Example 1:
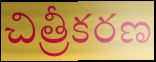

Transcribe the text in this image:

చిత్రీకరణ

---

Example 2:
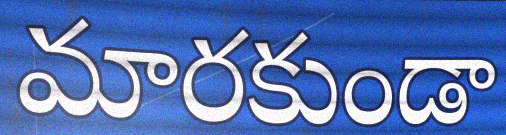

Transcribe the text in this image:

మారకుండా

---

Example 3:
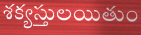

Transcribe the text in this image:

శక్యస్తులయితుం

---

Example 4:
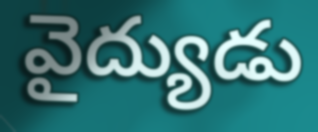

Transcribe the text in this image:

వైద్యుడు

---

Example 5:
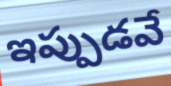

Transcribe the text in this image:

ఇప్పుడవే